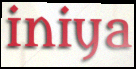
iniya